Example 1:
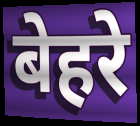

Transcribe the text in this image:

बेहरे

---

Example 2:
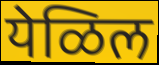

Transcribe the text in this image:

येळिल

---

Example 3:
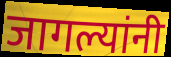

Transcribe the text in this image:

जागल्यांनी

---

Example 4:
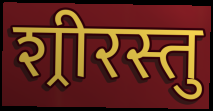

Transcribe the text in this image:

श्रीरस्तु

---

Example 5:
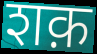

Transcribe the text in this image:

शक़